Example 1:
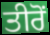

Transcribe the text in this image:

ਤੀਰੋਂ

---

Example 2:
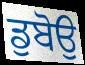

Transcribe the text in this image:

ਡੁਬੋਉ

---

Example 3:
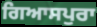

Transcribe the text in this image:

ਗਿਆਸਪੁਰਾ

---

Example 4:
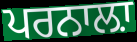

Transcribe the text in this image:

ਪਰਨਾਲ਼ਾ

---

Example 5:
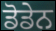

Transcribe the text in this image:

ਡੋਡੇਨ